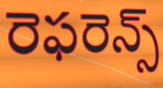
రెఫరెన్స్